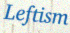
Leftism